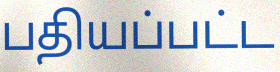
பதியப்பட்ட